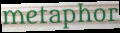
metaphor